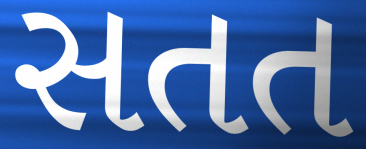
સતત